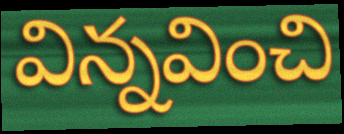
విన్నవించి